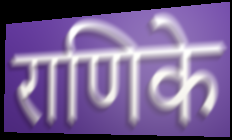
राणिके